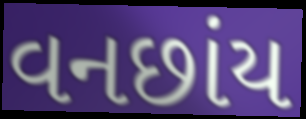
વનછાંય